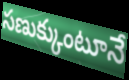
సణుక్కుంటూనే